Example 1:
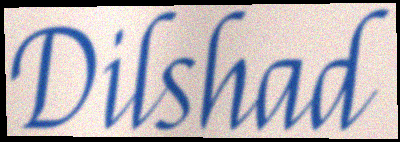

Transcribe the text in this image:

Dilshad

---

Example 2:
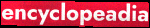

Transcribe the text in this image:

encyclopeadia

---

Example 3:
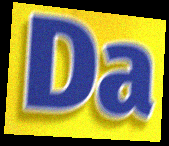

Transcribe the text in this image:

Da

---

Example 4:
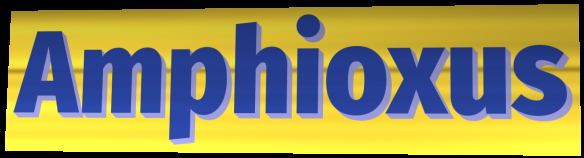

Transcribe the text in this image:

Amphioxus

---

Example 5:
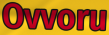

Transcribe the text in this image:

Ovvoru